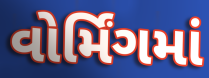
વોર્મિંગમાં